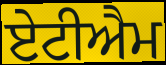
ਏਟੀਐਮ